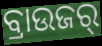
ବ୍ରାଉଜର୍